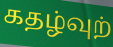
கதழ்வுற்